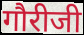
गौरीजी